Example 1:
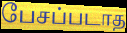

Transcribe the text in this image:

பேசப்படாத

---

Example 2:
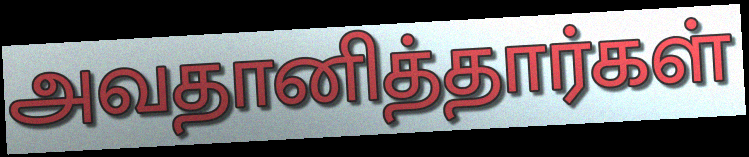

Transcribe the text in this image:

அவதானித்தார்கள்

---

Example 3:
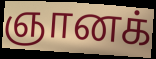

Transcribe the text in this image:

ஞானக்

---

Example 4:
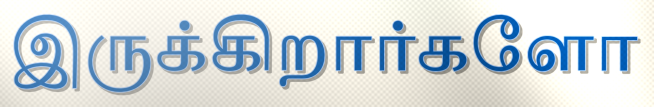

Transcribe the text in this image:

இருக்கிறார்களோ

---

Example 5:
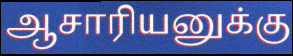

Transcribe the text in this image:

ஆசாரியனுக்கு